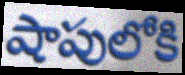
షాపులోకి